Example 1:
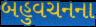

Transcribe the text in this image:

બહુવચનના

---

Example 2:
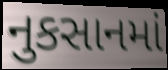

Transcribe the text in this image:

નુકસાનમાં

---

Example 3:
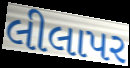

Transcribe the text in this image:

લીલાપર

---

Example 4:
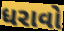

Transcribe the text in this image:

ધરાવો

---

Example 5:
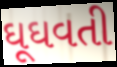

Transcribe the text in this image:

ઘૂઘવતી